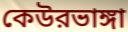
কেউরভাঙ্গা